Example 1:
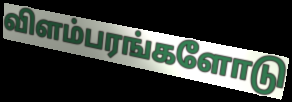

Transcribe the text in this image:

விளம்பரங்களோடு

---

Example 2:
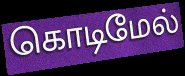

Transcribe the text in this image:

கொடிமேல்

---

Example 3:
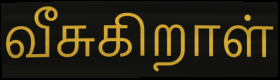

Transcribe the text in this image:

வீசுகிறாள்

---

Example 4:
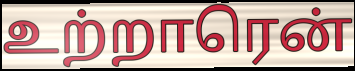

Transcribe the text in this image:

உற்றாரென்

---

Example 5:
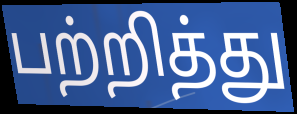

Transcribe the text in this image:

பற்றித்து